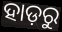
ହାଡ଼ରୁ